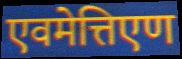
एवमेत्तिएण